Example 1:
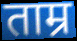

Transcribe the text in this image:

ताम्र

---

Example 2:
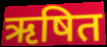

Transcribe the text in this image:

ऋषित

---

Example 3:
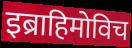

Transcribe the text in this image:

इब्राहिमोविच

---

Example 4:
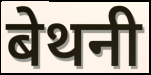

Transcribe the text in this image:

बेथनी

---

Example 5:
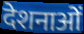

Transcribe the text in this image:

देशनाओं